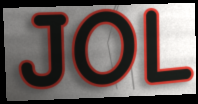
JOL